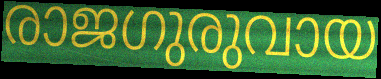
രാജഗുരുവായ